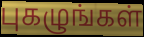
புகழுங்கள்